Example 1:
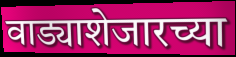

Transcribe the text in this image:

वाड्याशेजारच्या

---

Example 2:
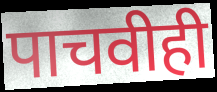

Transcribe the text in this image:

पाचवीही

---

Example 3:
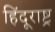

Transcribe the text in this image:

हिंदूराष्ट्र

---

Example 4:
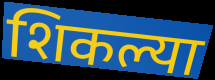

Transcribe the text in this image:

शिकल्या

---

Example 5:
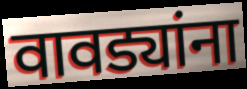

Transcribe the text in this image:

वावड्यांना